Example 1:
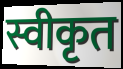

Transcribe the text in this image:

स्‍वीकृत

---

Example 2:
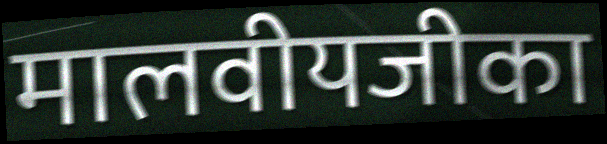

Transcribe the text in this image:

मालवीयजीका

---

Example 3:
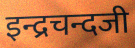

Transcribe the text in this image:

इन्द्रचन्दजी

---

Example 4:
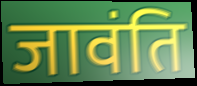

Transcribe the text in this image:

जावंति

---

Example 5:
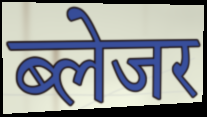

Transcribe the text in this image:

ब्लेजर